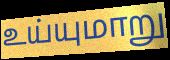
உய்யுமாறு